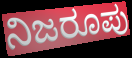
ನಿಜರೂಪು